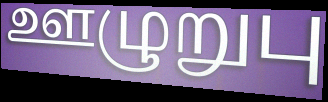
ஊழுறுபு